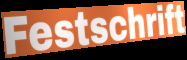
Festschrift